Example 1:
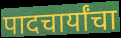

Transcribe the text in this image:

पादचार्यांचा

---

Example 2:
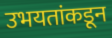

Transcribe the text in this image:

उभयतांकडून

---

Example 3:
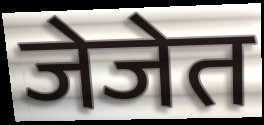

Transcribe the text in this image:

जेजेत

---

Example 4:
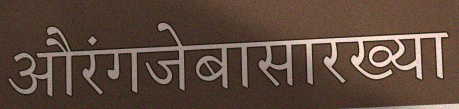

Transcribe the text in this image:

औरंगजेबासारख्या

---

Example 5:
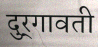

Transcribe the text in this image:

दुर्गावती